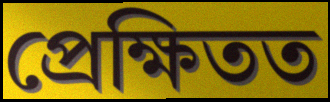
প্ৰেক্ষিতত